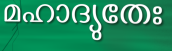
മഹാദ്യുതേഃ